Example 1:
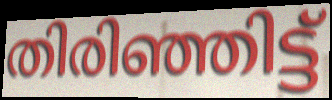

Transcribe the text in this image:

തിരിഞ്ഞിട്ട്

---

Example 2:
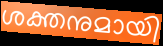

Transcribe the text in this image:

ശക്തനുമായി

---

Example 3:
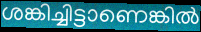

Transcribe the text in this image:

ശങ്കിച്ചിട്ടാണെങ്കിൽ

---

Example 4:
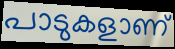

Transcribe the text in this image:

പാടുകളാണ്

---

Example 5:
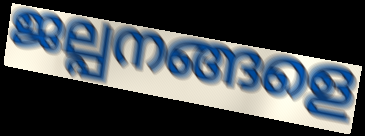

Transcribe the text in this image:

ജല്പനങ്ങളെ